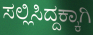
ಸಲ್ಲಿಸಿದ್ದಕ್ಕಾಗಿ